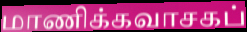
மாணிக்கவாசகப்